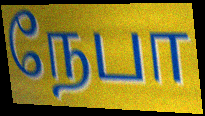
நேபா